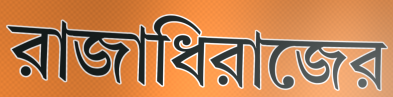
রাজাধিরাজের